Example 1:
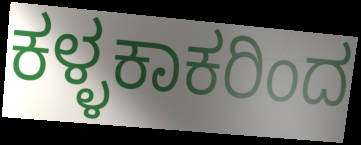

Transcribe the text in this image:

ಕಳ್ಳಕಾಕರಿಂದ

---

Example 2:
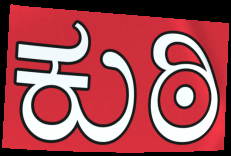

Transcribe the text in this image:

ಕುಠಿ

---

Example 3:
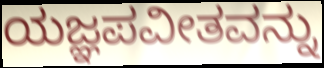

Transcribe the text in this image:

ಯಜ್ಞಪವೀತವನ್ನು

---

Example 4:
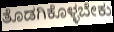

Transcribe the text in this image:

ತೊಡಗಿಕೊಳ್ಳಬೇಕು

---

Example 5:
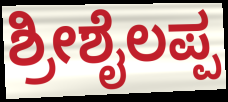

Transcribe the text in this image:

ಶ್ರೀಶೈಲಪ್ಪ